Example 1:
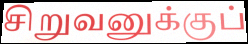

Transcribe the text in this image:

சிறுவனுக்குப்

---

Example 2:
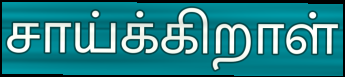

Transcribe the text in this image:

சாய்க்கிறாள்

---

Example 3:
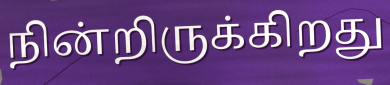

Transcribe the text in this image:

நின்றிருக்கிறது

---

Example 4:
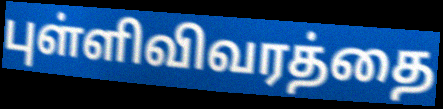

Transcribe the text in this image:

புள்ளிவிவரத்தை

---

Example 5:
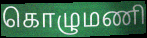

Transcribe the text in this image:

கொழுமணி